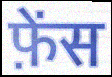
फ़ेंस